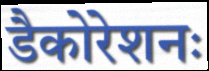
डैकोरेशनः